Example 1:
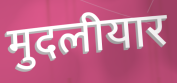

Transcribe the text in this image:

मुदलीयार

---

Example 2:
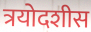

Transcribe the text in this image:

त्रयोदशीस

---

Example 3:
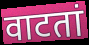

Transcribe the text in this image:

वाटतां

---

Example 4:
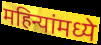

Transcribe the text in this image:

महिन्यांमध्ये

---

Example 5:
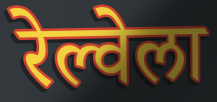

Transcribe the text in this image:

रेल्वेला